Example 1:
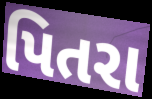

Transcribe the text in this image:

પિતરા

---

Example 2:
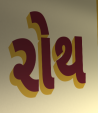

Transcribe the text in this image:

રોથ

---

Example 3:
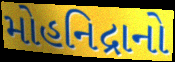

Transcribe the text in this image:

મોહનિદ્રાનો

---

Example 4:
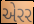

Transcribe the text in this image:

એરર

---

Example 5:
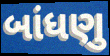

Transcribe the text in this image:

બાંધણુ